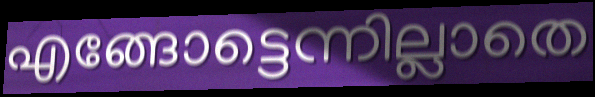
എങ്ങോട്ടെന്നില്ലാതെ